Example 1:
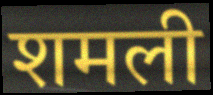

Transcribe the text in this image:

शमली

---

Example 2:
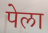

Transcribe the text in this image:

पेला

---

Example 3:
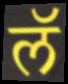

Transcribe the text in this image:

लॅ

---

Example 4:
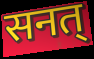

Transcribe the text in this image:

सनत्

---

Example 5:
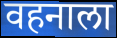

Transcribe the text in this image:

वहनाला